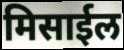
मिसाईल